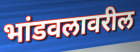
भांडवलावरील